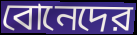
বোনেদের